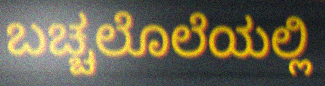
ಬಚ್ಚಲೊಲೆಯಲ್ಲಿ